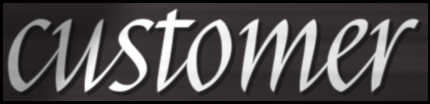
customer